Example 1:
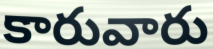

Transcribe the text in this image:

కారువారు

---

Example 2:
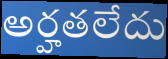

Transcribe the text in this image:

అర్హతలేదు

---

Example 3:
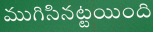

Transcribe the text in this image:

ముగిసినట్టయింది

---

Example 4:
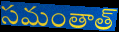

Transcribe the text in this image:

సమంతాత్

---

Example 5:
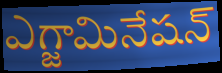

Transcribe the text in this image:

ఎగ్జామినేషన్